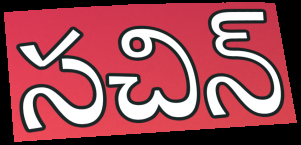
సచిన్